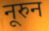
नूरुन